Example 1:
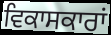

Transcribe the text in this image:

ਵਿਕਾਸਕਾਰਾਂ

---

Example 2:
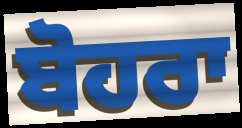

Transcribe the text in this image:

ਬੋਹਰਾ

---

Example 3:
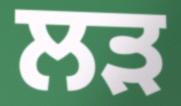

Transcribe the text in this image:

ਲੜ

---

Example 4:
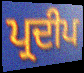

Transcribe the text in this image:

ਪ੍ਰਦੀਪ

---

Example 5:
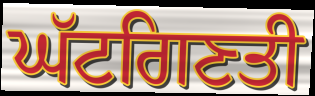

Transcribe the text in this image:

ਘੱਟਗਿਣਤੀ